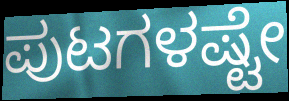
ಪುಟಗಳಷ್ಟೇ